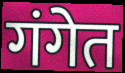
गंगेत